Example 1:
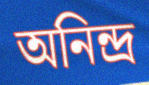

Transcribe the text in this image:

অনিন্দ্র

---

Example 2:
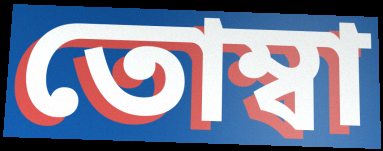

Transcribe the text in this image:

তোম্বা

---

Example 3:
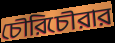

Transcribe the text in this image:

চৌরিচৌরার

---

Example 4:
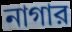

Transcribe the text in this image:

নাগার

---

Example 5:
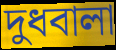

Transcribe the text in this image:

দুধবালা